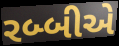
રબ્બીએ